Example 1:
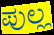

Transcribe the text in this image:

ಪುಲ್ಲ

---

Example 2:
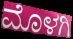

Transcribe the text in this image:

ಮೊಳಗಿ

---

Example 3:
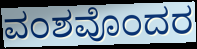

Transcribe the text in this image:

ವಂಶವೊಂದರ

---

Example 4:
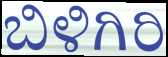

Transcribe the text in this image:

ಬಿಳಿಗಿರಿ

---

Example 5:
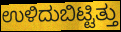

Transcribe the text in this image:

ಉಳಿದುಬಿಟ್ಟಿತ್ತು